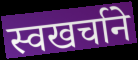
स्वखर्चाने